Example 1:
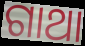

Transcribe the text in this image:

ଗାଥା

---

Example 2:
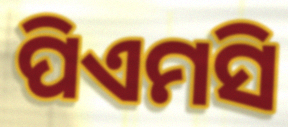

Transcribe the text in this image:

ପିଏମସି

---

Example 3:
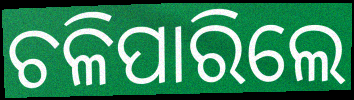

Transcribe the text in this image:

ଚଳିପାରିଲେ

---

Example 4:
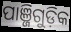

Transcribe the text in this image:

ପାଞ୍ଜିଗୁଡ଼ିକ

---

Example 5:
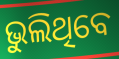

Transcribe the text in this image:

ଭୁଲିଥିବେ